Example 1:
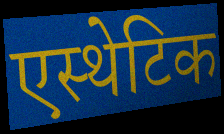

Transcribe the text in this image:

एस्थेटिक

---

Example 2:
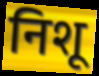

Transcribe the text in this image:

निशू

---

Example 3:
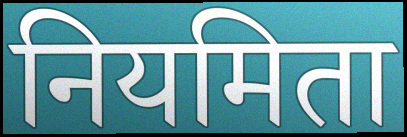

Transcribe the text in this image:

नियमिता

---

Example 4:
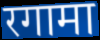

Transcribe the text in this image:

रगामा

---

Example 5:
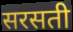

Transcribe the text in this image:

सरसती